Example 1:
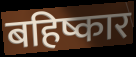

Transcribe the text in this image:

बहिष्‍कार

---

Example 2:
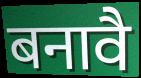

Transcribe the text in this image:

बनावै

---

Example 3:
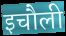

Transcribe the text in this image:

इचौली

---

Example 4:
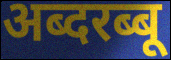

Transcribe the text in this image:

अब्दरब्बू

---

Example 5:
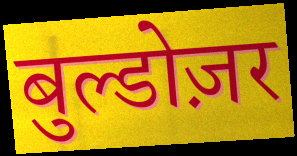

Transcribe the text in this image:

बुल्डोज़र